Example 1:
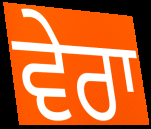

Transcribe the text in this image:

ਵੇਰਾ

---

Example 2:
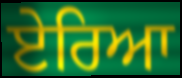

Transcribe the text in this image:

ਏਰਿਆ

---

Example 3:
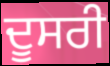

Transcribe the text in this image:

ਦੂਸਰੀ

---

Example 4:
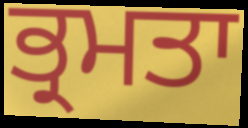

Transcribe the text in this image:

ਭ੍ਰਮਤਾ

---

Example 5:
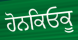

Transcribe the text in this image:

ਹੋਨਕਿਓਕੂ